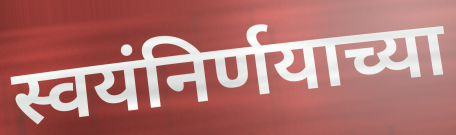
स्वयंनिर्णयाच्या